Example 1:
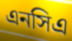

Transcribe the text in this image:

এনসিএ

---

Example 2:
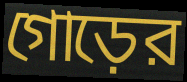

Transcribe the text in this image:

গোড়ের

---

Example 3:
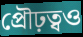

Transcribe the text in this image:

প্রৌঢ়ত্বও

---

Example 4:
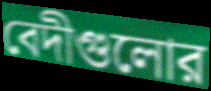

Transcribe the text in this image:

বেদীগুলোর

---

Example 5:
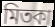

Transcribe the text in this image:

মিতকা